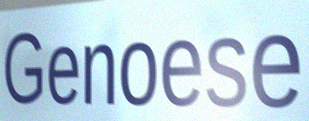
Genoese